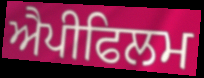
ਐਪੀਫਿਲਮ